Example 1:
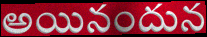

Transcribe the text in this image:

అయినందున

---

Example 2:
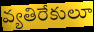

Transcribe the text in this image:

వ్యతిరేకులూ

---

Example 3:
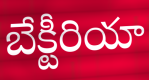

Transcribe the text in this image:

బేక్టీరియా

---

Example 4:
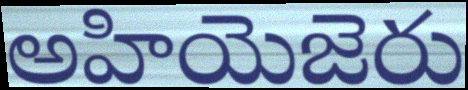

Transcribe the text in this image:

అహియెజెరు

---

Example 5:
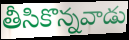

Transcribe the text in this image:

తీసికొన్నవాడు